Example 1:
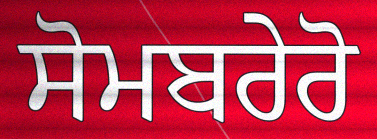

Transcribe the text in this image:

ਸੋਮਬਰੇਰੋ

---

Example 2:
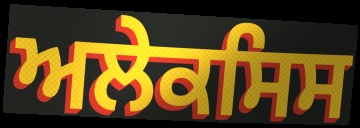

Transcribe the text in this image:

ਅਲੇਕਸਿਸ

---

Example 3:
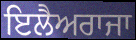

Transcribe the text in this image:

ਇਲੈਅਰਾਜਾ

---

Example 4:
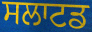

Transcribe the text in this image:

ਸਲਾਟਡ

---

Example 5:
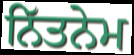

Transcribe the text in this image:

ਨਿੱਤਨੇਮ